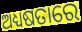
ଅଧ୍ୟଷତାରେ